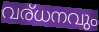
വര്ധനവും